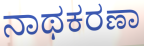
ನಾಥಕರಣಾ